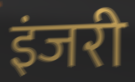
इंजरी